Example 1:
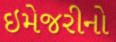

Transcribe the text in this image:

ઇમેજરીનો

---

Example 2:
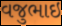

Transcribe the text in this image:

વજુભાઇ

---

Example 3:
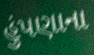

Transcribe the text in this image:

હુંપણાના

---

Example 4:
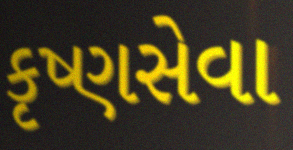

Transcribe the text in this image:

કૃષ્ણસેવા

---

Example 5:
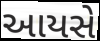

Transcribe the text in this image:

આયસે